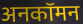
अनकॉमन